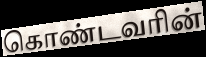
கொண்டவரின்